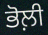
ਭੋਲ਼ੀ